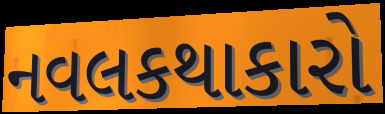
નવલકથાકારો